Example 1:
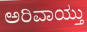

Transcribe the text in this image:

ಅರಿವಾಯ್ತು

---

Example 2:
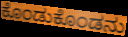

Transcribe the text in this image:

ಕೊಂಡುಕೊಂಡನು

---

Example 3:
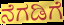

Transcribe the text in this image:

ನೆಗಡಿಗೆ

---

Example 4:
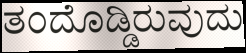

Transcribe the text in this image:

ತಂದೊಡ್ಡಿರುವುದು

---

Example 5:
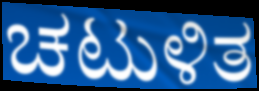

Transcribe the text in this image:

ಚಟುಳಿತ